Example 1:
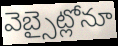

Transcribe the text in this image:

వెబ్సైట్లోనూ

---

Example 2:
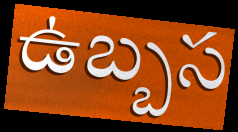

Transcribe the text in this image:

ఉబ్బస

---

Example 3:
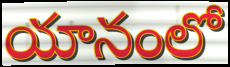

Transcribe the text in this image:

యానంలో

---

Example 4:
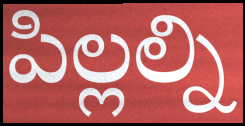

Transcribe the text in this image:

పిల్లల్ని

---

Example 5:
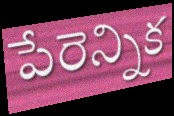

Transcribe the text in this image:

పేరెన్నిక